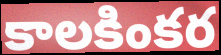
కాలకింకర